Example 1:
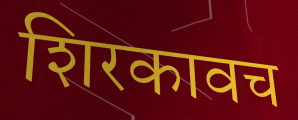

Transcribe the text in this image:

शिरकावच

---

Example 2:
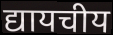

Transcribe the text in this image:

द्यायचीय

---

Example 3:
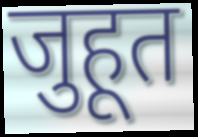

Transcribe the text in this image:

जुहूत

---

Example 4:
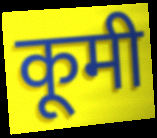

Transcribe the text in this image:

कूमी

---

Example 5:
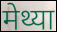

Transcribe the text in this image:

मेथ्या